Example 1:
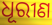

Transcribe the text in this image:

ଧୂରୀଣ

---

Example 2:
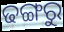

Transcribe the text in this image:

ଢଙ୍ଗରୁ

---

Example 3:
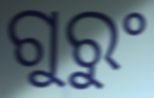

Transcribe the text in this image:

ଗୁରୁଂ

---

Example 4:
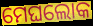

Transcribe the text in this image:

ମେଘଲୋକ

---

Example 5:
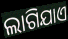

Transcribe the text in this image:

ଲାଗିଯାଏ